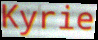
Kyrie